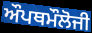
ਔਪਥਮੌਲੋਜੀ